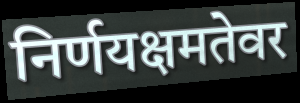
निर्णयक्षमतेवर